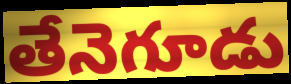
తేనెగూడు